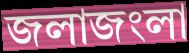
জলাজংলা